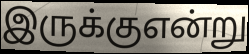
இருக்குஎன்று